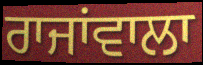
ਰਾਜਾਂਵਾਲਾ